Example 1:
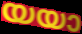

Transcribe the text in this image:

യയാ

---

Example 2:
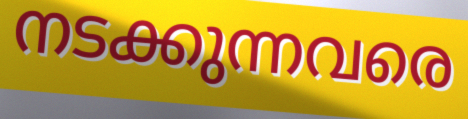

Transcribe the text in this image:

നടക്കുന്നവരെ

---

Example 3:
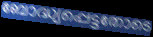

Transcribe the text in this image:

ബോദ്ധ്യപ്പെട്ടതോടെ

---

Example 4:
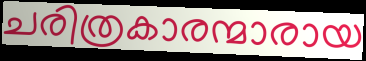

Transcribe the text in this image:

ചരിത്രകാരന്മാരായ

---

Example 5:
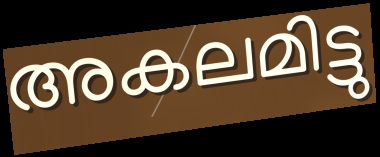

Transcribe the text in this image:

അകലമിട്ടു